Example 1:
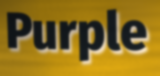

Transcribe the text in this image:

Purple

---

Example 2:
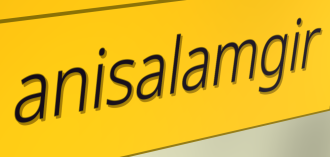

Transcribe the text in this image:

anisalamgir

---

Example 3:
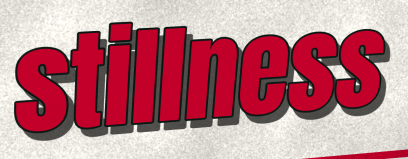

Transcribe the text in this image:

stillness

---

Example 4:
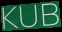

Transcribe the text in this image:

KUB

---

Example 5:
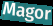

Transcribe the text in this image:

Magor